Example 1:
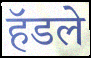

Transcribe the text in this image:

हॅडले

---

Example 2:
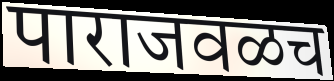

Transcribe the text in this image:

पाराजवळच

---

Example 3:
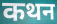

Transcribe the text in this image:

कथन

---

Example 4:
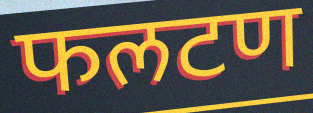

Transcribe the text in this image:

फलटण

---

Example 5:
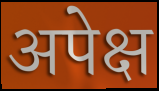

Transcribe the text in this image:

अपेक्ष